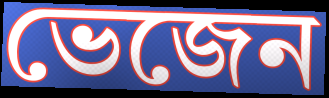
ভেজেন